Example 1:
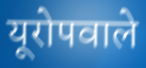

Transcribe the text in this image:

यूरोपवाले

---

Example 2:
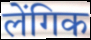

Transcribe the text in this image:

लेंगिक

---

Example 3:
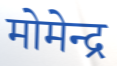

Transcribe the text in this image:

मोमेन्द्र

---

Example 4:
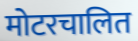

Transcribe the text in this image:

मोटरचालित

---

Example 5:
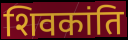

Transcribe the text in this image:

शिवकांति